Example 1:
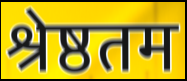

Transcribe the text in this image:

श्रेष्ठतम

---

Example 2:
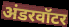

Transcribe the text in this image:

अंडरवॉटर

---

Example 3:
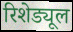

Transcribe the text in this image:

रिशेड्यूल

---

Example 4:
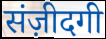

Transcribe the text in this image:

संज़ीदगी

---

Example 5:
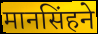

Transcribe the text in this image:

मानसिंहने